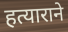
हत्याराने